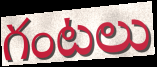
గంటలు